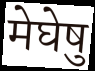
मेघेषु